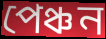
পেঞ্চন